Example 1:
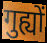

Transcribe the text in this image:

गुह्यों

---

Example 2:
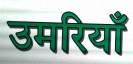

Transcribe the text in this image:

उमरियाँ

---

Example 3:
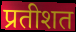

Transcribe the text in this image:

प्रतीशत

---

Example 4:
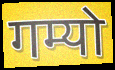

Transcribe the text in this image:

गम्यो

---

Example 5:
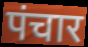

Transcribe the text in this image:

पंचार